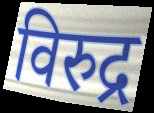
विरुद्र